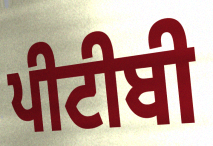
ਪੀਟੀਬੀ